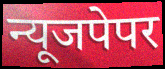
न्यूजपेपर